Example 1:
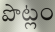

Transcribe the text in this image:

పొట్లం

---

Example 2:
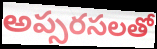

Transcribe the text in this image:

అప్సరసలతో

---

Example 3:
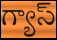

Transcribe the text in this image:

గ్యాస్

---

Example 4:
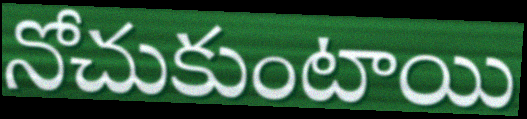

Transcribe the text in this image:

నోచుకుంటాయి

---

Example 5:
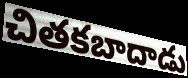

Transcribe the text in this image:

చితకబాదాడు